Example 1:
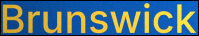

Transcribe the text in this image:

Brunswick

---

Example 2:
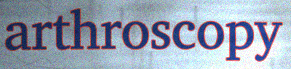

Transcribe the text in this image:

arthroscopy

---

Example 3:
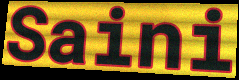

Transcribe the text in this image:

Saini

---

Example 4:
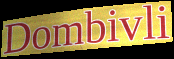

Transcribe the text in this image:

Dombivli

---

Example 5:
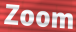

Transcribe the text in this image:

Zoom